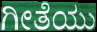
ಗೀತೆಯು